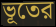
ভূতের